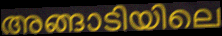
അങ്ങാടിയിലെ